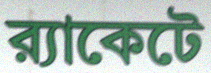
র‍্যাকেটে